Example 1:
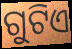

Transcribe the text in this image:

ଗୁଟିଏ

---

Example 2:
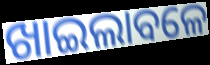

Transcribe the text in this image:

ଖାଇଲାବଳେ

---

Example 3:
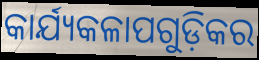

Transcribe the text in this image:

କାର୍ଯ୍ୟକଳାପଗୁଡ଼ିକର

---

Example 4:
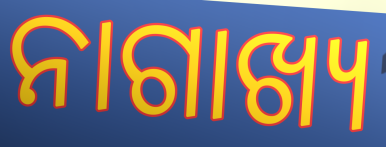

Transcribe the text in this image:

ନାଗାଖ୍ୟ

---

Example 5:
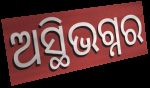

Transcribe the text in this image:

ଅସ୍ଥିଭଗ୍ନର